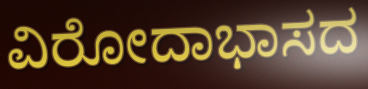
ವಿರೋದಾಭಾಸದ